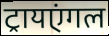
ट्रायएंगल